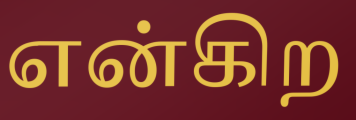
என்கிற